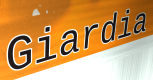
Giardia